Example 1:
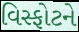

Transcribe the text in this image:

વિસ્ફોટને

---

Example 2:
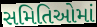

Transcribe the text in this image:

સમિતિઓમાં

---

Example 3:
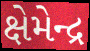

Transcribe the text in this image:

ક્ષેમેન્દ્ર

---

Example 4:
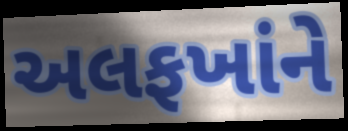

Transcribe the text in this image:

અલફખાંને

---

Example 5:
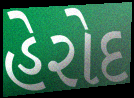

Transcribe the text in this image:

હેરોદ